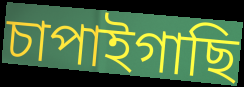
চাপাইগাছি